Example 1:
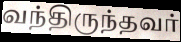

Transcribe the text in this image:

வந்திருந்தவர்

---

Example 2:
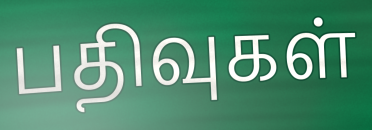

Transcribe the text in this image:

பதிவுகள்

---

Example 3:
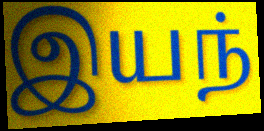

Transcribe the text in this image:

இயந்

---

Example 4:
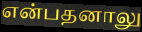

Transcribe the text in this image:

என்பதனாலு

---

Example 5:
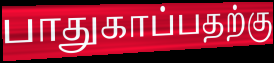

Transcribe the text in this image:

பாதுகாப்பதற்கு